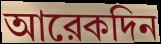
আরেকদিন